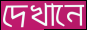
দেখানে